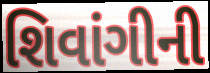
શિવાંગીની